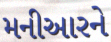
મનીઆરને